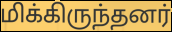
மிக்கிருந்தனர்